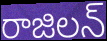
రాజిలన్